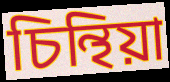
চিন্থিয়া